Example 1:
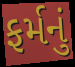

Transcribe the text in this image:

ફર્મનું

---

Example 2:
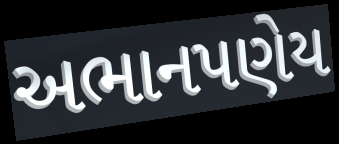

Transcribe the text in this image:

અભાનપણેય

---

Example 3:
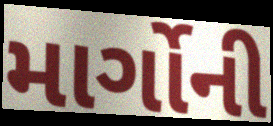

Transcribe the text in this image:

માર્ગોની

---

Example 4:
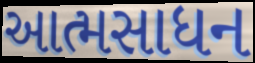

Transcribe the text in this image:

આત્મસાધન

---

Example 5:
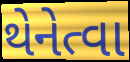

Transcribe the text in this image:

થેનેત્વા